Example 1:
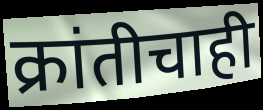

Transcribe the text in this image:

क्रांतीचाही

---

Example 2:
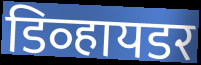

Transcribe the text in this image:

डिव्हायडर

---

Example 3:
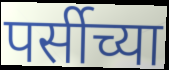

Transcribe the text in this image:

पर्सीच्या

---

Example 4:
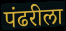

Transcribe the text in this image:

पंढरीला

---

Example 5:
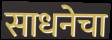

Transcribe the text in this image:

साधनेचा